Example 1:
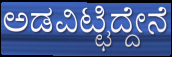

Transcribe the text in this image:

ಅಡವಿಟ್ಟಿದ್ದೇನೆ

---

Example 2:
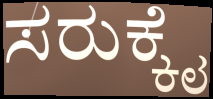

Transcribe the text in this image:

ಸರುಕ್ಕೈ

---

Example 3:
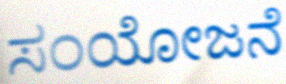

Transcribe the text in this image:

ಸಂಯೋಜನೆ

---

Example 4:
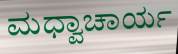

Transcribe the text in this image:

ಮಧ್ವಾಚಾರ್ಯ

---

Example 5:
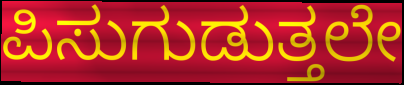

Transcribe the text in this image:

ಪಿಸುಗುಡುತ್ತಲೇ